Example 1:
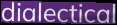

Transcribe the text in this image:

dialectical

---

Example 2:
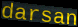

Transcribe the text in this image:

darsan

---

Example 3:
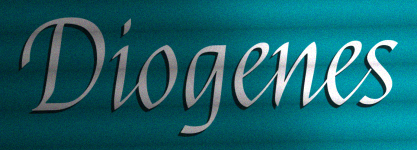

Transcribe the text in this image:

Diogenes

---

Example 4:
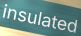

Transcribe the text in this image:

insulated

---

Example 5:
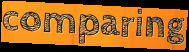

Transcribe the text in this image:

comparing